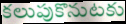
కలుపుకొనుటకు